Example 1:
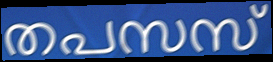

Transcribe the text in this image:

തപസസ്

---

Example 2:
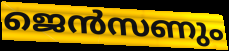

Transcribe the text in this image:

ജെൻസണും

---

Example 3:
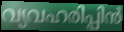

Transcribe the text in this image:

വ്യവഹരിപ്പിൻ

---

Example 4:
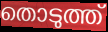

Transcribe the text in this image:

തൊടുത്ത്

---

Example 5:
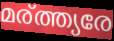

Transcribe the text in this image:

മര്ത്ത്യരേ